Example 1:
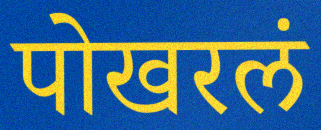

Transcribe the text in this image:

पोखरलं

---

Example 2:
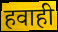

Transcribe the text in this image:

हवाही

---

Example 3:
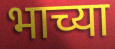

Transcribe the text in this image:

भाच्या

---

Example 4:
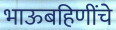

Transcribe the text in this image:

भाऊबहिणींचे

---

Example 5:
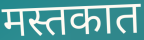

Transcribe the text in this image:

मस्तकात